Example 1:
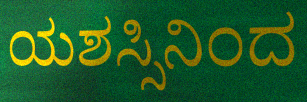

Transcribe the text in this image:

ಯಶಸ್ಸಿನಿಂದ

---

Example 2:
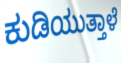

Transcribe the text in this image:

ಕುಡಿಯುತ್ತಾಳೆ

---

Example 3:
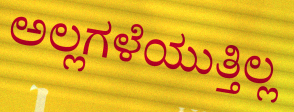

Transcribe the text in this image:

ಅಲ್ಲಗಳೆಯುತ್ತಿಲ್ಲ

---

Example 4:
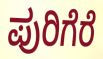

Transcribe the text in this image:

ಪುರಿಗೆರೆ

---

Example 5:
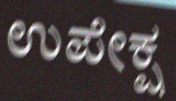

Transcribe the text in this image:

ಉಪೇಕ್ಷ